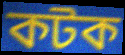
কটক